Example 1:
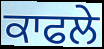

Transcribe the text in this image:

ਕਾਫਲੇ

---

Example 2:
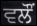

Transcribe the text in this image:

ਵਲੌੰ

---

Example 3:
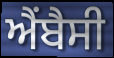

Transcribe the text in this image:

ਐਂਬੈਸੀ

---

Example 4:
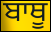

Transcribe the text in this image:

ਬਾਥੂ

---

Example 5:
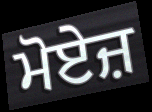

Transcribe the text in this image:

ਮੋਏਜ਼